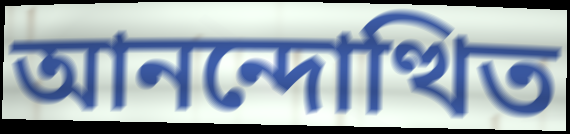
আনন্দোত্থিত